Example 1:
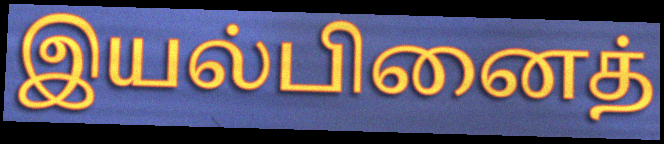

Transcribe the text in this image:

இயல்பினைத்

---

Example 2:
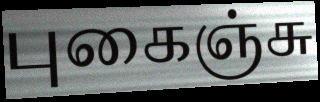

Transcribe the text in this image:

புகைஞ்சு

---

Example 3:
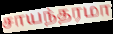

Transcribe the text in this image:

சாயந்தரமா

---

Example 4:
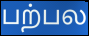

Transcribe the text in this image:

பற்பல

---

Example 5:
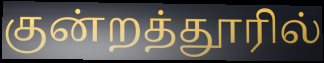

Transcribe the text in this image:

குன்றத்தூரில்